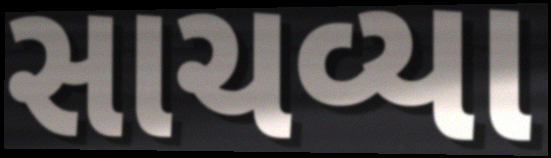
સાચવ્યા